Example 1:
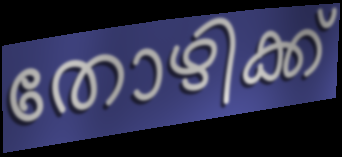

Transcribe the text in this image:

തോഴിക്ക്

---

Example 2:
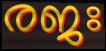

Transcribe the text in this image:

രജഃ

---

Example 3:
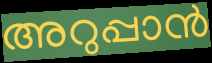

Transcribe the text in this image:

അറുപ്പാൻ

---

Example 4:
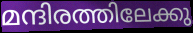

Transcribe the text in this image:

മന്ദിരത്തിലേക്കു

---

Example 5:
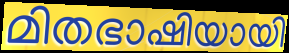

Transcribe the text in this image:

മിതഭാഷിയായി